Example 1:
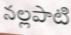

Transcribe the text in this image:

నల్లపాటి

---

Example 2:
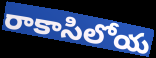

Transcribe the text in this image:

రాకాసిలోయ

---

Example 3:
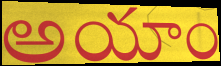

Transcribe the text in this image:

అయాం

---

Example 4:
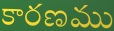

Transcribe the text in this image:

కారణము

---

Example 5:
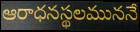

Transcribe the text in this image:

ఆరాధనస్థలముననే